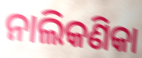
ନାଲିକଣିକା